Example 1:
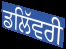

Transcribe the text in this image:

ਡਲਿੱਵਰੀ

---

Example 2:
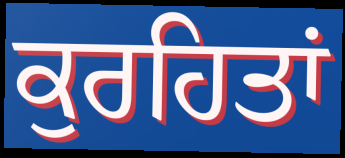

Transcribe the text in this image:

ਕੁਰਹਿਤਾਂ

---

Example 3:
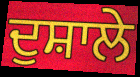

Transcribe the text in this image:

ਦੁਸ਼ਾਲੇ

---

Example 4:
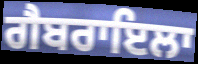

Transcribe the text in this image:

ਗੈਬਰਾਇਲਾ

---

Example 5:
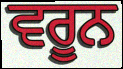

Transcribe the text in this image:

ਵਰੂਨ